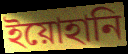
ইয়োহানি